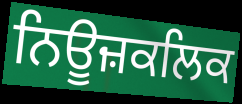
ਨਿਊਜ਼ਕਲਿਕ